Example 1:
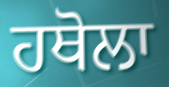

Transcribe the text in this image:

ਹਥੋਲਾ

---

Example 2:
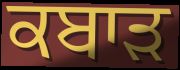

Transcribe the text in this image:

ਕਬਾੜ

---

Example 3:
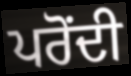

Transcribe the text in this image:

ਪਰੋਂਦੀ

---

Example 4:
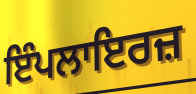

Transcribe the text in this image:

ਇੰਪਲਾਇਰਜ਼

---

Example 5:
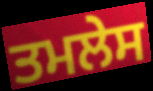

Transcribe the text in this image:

ਤਮਲੇਸ